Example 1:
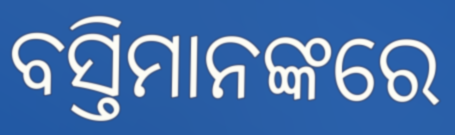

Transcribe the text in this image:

ବସ୍ତିମାନଙ୍କରେ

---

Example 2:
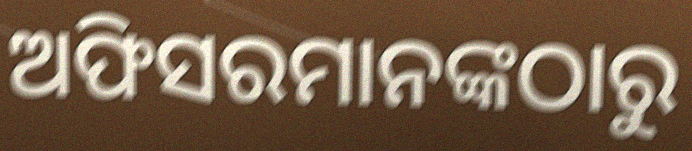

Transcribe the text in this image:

ଅଫିସରମାନଙ୍କଠାରୁ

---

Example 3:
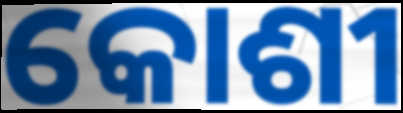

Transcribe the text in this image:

କୋଶୀ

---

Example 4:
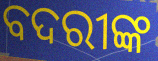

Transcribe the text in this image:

ବଦରୀଙ୍କ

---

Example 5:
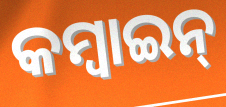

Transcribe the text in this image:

କମ୍ବାଇନ୍